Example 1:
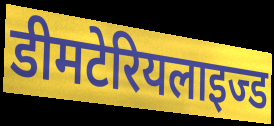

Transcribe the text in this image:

डीमटेरियलाइज्ड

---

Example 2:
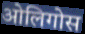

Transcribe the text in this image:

ओलिगोस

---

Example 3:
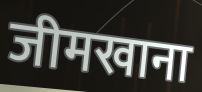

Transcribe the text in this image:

जीमखाना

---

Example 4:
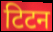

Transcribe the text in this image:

टिटन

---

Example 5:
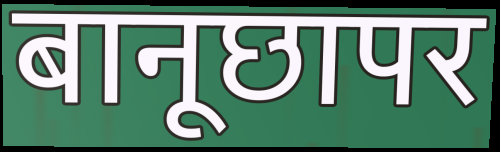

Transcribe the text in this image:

बानूछापर